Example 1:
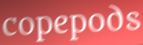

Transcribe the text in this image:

copepods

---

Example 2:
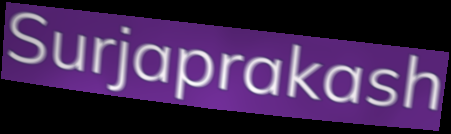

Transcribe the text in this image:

Surjaprakash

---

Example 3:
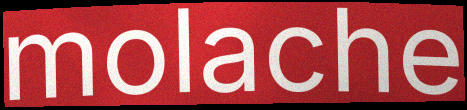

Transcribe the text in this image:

molache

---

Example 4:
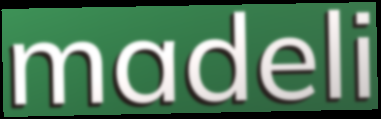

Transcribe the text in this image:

madeli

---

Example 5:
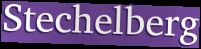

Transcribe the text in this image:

Stechelberg